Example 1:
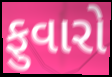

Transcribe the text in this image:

ફુવારો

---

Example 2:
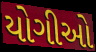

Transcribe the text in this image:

યોગીઓ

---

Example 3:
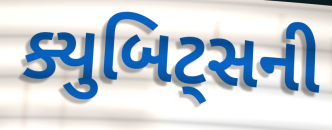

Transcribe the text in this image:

ક્યુબિટ્સની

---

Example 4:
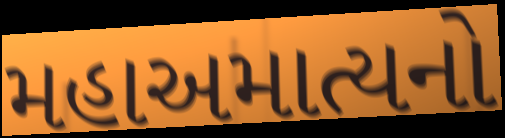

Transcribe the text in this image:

મહાઅમાત્યનો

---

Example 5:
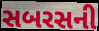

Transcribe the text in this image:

સબરસની